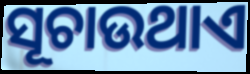
ସୂଚାଉଥାଏ